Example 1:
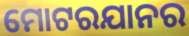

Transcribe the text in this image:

ମୋଟରଯାନର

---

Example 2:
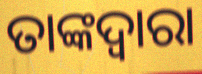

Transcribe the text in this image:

ତାଙ୍କଦ୍ଵାରା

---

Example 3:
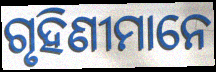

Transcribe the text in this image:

ଗୃହିଣୀମାନେ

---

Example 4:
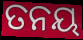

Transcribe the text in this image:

ତନୟ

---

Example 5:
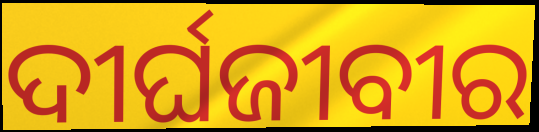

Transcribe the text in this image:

ଦୀର୍ଘଜୀବୀର